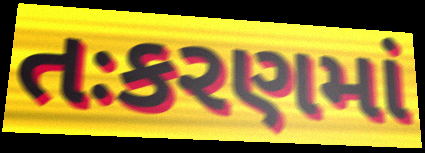
તઃકરણમાં